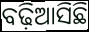
ବଢ଼ିଆସିଛି